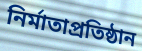
নির্মাতাপ্রতিষ্ঠান